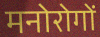
मनोरोगों